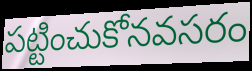
పట్టించుకోనవసరం